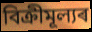
বিক্ৰীমূল্যৰ